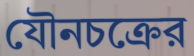
যৌনচক্রের